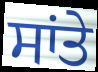
ਸਾਂਤੇ